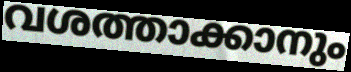
വശത്താക്കാനും